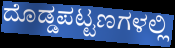
ದೊಡ್ಡಪಟ್ಟಣಗಳಲ್ಲಿ